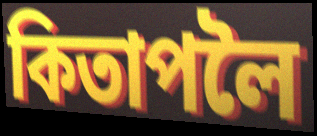
কিতাপলৈ